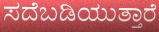
ಸದೆಬಡಿಯುತ್ತಾರೆ